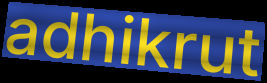
adhikrut